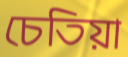
চেতিয়া